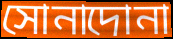
সোনাদোনা